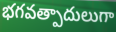
భగవత్పాదులుగా